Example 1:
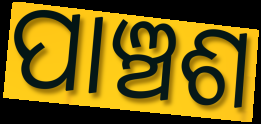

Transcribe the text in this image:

ପାଞ୍ଚଶ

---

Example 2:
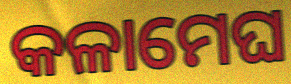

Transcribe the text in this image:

କଳାମେଘ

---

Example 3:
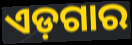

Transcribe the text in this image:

ଏଡ଼ଗାର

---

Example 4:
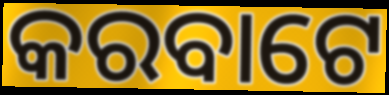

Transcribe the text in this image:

କରବାଟେ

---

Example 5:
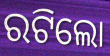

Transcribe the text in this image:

ରଟିଲୋ